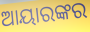
ଆୟାରଙ୍କର